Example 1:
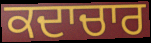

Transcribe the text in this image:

ਕਦਾਚਾਰ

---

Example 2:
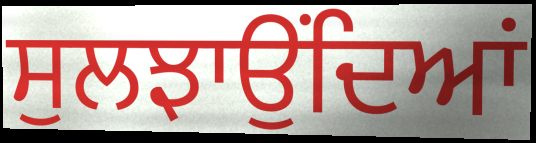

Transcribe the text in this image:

ਸੁਲਝਾਉਂਦਿਆਂ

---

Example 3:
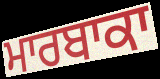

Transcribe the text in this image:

ਮਾਰਬਾਕਾ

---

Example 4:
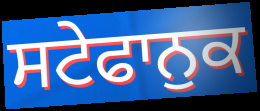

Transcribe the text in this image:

ਸਟੇਫਾਨੁਕ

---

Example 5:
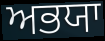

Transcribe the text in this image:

ਅਭਯਾ